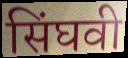
सिंघवी